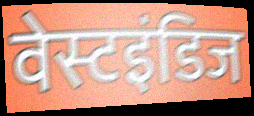
वेस्टइंडिज